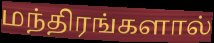
மந்திரங்களால்